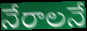
నేరాలనే